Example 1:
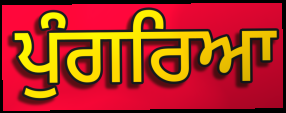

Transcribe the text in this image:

ਪੁੰਗਰਿਆ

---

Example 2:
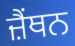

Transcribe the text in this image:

ਜ਼ੈਂਥਨ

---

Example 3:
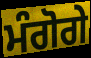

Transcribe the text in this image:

ਮੰਗੋਗੇ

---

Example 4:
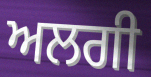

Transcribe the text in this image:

ਅਲਗੀ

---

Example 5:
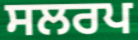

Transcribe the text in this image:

ਸਲਰਪ